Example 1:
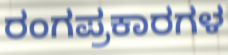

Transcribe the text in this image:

ರಂಗಪ್ರಕಾರಗಳ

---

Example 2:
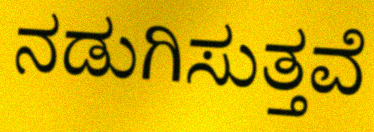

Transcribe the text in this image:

ನಡುಗಿಸುತ್ತವೆ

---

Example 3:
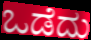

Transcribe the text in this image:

ಒಡೆದು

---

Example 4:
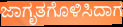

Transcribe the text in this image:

ಜಾಗೃತಗೊಳಿಸಿದಾಗ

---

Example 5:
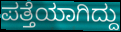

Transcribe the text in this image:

ಪತ್ತೆಯಾಗಿದ್ದು